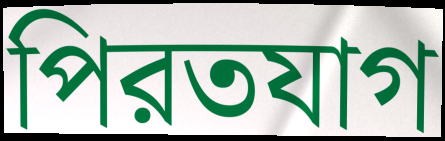
পিরতযাগ